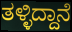
ತಳ್ಳಿದ್ದಾನೆ